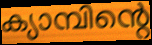
ക്യാമ്പിന്റെ